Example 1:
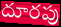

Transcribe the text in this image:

దూరపు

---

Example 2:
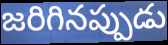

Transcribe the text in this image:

జరిగినప్పుడు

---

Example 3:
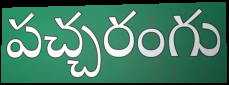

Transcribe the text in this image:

పచ్చరంగు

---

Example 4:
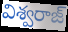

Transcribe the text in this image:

విశ్వరాజ్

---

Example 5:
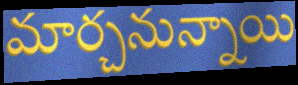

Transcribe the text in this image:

మార్చనున్నాయి